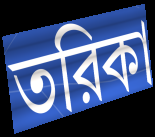
তরিকা